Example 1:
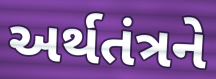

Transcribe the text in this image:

અર્થતંત્રને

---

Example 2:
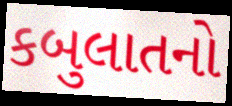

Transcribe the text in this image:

કબુલાતનો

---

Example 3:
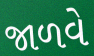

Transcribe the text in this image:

જાળવે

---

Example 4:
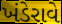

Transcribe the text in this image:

ખંડેરાવે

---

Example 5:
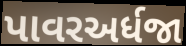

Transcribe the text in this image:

પાવરઅર્ધજા